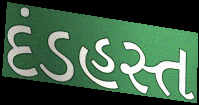
દંડહસ્ત